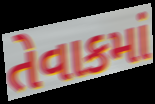
તેવાકમાં